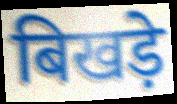
बिखड़े